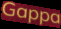
Gappa